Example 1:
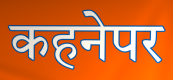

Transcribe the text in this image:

कहनेपर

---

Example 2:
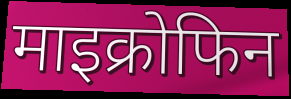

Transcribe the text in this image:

माइक्रोफिन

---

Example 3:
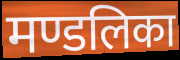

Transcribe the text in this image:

मण्डलिका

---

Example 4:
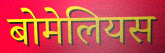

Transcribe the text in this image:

बोमेलियस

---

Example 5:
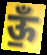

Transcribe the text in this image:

ऊँ॒